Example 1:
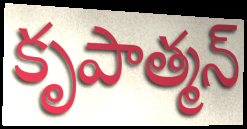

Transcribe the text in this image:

కృపాత్మన్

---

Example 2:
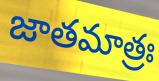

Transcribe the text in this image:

జాతమాత్రః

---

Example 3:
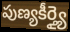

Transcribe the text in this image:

పుణ్యకీర్త్యై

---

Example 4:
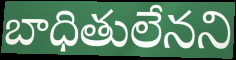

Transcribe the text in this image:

బాధితులేనని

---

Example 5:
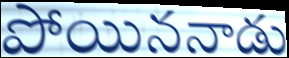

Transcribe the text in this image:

పోయిననాడు